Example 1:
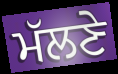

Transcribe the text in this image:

ਮੱਲਣੇ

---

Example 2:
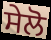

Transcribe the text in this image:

ਸੇਲੋ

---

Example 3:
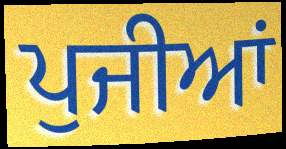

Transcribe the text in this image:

ਪੁਜੀਆਂ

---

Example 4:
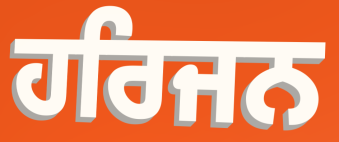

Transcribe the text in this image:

ਹਰਿਜਨ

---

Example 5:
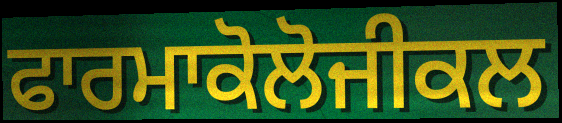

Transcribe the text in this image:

ਫਾਰਮਾਕੋਲੋਜੀਕਲ